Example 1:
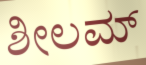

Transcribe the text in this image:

ಶೀಲಮ್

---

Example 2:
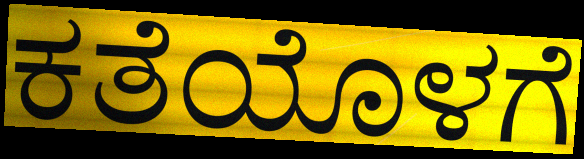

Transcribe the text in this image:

ಕತೆಯೊಳಗೆ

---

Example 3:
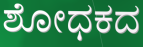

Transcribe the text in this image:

ಶೋಧಕದ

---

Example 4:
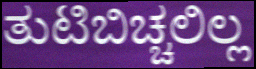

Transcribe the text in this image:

ತುಟಿಬಿಚ್ಚಲಿಲ್ಲ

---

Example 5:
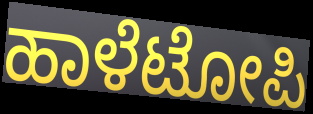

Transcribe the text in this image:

ಹಾಳೆಟೋಪಿ